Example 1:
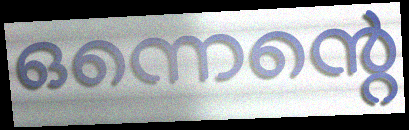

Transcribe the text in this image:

ഒന്നെന്റെ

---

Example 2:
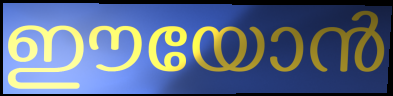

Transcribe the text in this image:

ഈയോൻ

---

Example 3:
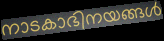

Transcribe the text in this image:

നാടകാഭിനയങ്ങൾ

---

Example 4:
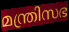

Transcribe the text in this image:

മന്ത്രിസഭ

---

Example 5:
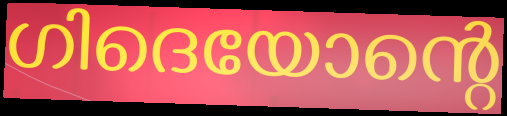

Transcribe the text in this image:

ഗിദെയോന്റെ